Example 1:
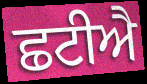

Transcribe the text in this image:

ਛਟੀਐ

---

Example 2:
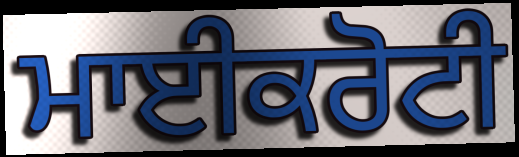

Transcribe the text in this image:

ਮਾਈਕਰੋਟੀ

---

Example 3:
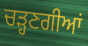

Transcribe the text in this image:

ਚੜ੍ਹਣਗੀਆਂ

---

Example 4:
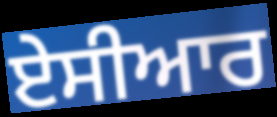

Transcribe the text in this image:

ਏਸੀਆਰ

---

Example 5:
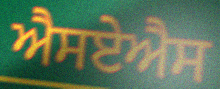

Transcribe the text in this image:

ਐਸਏਐਸ